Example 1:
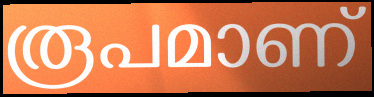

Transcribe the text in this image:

രൂപമാണ്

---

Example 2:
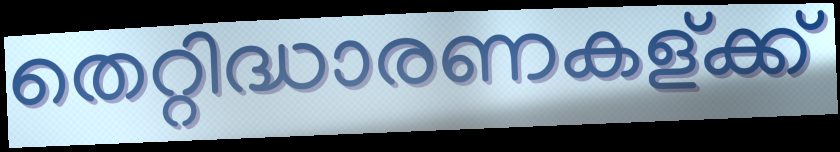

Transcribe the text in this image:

തെറ്റിദ്ധാരണകള്ക്ക്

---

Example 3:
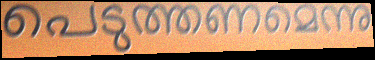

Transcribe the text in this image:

പെടുത്തണമെന്നു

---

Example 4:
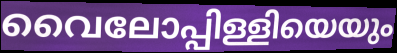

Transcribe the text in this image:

വൈലോപ്പിള്ളിയെയും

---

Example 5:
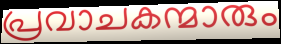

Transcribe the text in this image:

പ്രവാചകന്മാരും